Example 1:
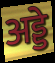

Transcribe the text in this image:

अड्डे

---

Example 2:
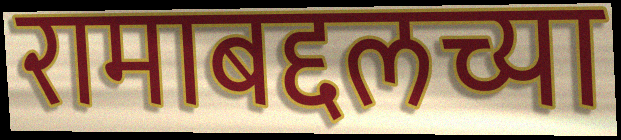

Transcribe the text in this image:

रामाबद्दलच्या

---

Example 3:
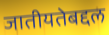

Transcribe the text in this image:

जातीयतेबद्दल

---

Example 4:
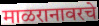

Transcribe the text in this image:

माळरानावरचे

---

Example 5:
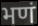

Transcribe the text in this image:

भणं